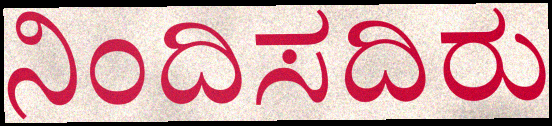
ನಿಂದಿಸದಿರು